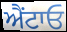
ਐਂਟਾਓ